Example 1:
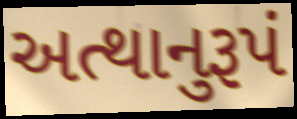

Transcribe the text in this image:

અત્થાનુરૂપં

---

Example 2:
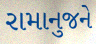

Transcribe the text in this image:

રામાનુજને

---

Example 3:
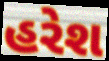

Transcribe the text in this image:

હરેશ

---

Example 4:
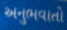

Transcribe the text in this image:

અનુભવાતો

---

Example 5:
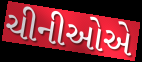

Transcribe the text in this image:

ચીનીઓએ